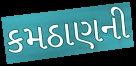
કમઠાણની